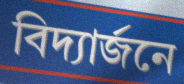
বিদ্যার্জনে